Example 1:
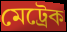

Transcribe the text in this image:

মেট্রেক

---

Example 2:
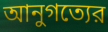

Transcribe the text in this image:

আনুগত্যের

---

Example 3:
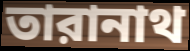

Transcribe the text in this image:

তারানাথ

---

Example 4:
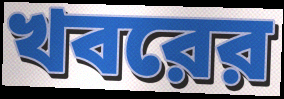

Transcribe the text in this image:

খবরের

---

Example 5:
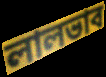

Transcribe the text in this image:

লালভাব